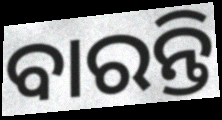
ବାରନ୍ତି